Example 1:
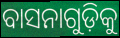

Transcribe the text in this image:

ବାସନାଗୁଡ଼ିକୁ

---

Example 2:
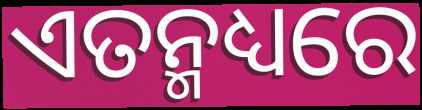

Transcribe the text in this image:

ଏତନ୍ମଧ୍ୟରେ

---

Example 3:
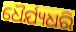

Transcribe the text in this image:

ଧୈର୍ଯ୍ୟଧରି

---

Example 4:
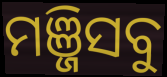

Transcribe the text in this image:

ମଞ୍ଜିସବୁ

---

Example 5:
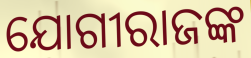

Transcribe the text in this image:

ଯୋଗୀରାଜଙ୍କ